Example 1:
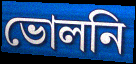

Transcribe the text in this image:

ভোলনি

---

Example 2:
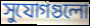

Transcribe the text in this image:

সুযোগগুলো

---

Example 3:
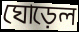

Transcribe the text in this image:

ঘোড়েল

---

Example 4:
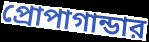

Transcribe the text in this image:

প্রোপাগান্ডার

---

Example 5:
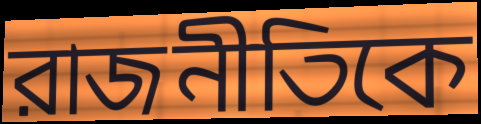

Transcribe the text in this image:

রাজনীতিকে